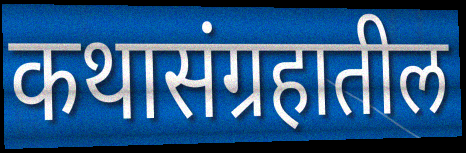
कथासंग्रहातील